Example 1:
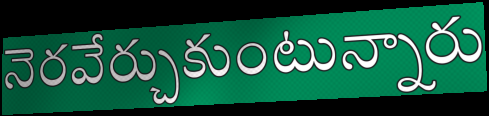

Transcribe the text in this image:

నెరవేర్చుకుంటున్నారు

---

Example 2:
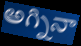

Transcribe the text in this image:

అగ్నినా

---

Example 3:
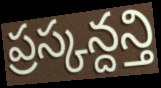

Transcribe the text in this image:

ప్రస్కన్దన్తి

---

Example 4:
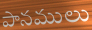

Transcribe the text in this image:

పానములు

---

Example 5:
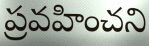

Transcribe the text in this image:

ప్రవహించని